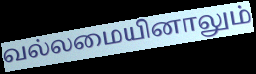
வல்லமையினாலும்